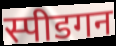
स्पीडगन